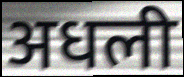
अधली